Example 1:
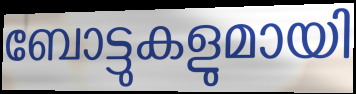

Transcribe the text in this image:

ബോട്ടുകളുമായി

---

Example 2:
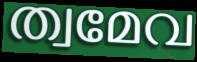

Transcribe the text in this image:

ത്വമേവ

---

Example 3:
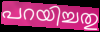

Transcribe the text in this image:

പറയിച്ചതു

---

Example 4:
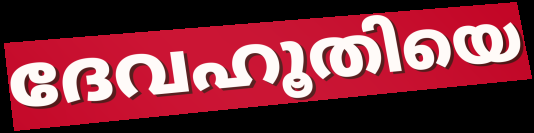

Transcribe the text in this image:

ദേവഹൂതിയെ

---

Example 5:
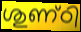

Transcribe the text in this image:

ശുണ്‌ഠി